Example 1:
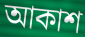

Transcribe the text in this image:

আকাশ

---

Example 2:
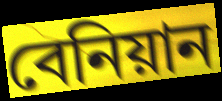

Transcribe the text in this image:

বেনিয়ান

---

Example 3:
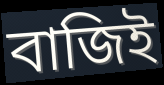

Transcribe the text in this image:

বাজিই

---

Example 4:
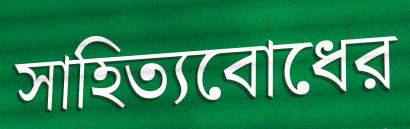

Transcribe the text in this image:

সাহিত্যবোধের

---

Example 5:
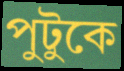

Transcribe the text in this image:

পুটুকে